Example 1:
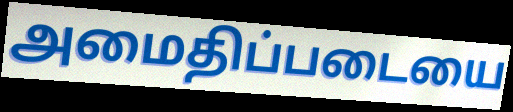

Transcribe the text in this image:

அமைதிப்படையை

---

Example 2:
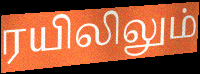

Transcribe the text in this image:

ரயிலிலும்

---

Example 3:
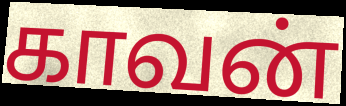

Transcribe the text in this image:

காவன்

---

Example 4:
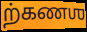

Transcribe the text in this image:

ற்கணஶ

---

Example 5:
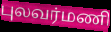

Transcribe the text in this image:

புலவர்மணி